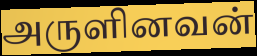
அருளினவன்